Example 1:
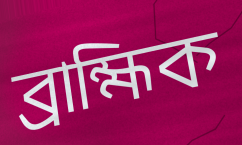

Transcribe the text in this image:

ব্ৰাহ্মিক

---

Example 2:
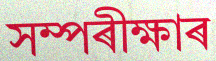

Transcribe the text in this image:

সম্পৰীক্ষাৰ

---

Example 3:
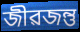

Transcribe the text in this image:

জীৱজন্তু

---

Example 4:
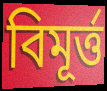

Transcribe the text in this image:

বিমূৰ্ত্ত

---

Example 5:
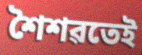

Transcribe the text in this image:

শৈশৱতেই